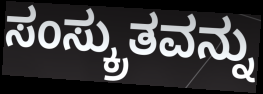
ಸಂಸ್ಕ್ರುತವನ್ನು